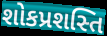
શોકપ્રશસ્તિ